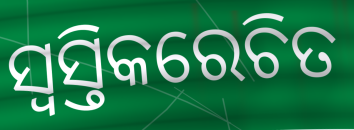
ସ୍ୱସ୍ତିକରେଚିତ